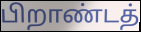
பிறாண்டத்